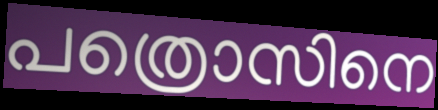
പത്രൊസിനെ